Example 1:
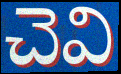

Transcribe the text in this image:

చెవి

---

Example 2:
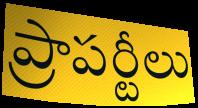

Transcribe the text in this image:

ప్రాపర్టీలు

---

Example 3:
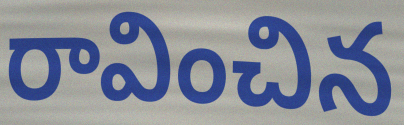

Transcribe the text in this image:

రావించిన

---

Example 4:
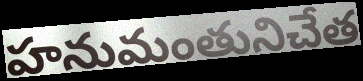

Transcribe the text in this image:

హనుమంతునిచేత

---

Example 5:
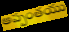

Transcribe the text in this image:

అప్పంతయు